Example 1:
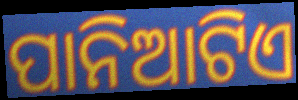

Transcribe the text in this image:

ପାନିଆଟିଏ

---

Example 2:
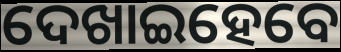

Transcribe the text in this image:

ଦେଖାଇହେବେ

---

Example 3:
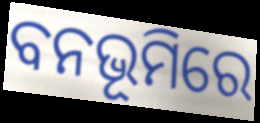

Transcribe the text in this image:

ବନଭୂମିରେ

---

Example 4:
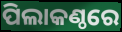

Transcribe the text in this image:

ପିଲାକଣ୍ଠରେ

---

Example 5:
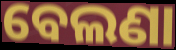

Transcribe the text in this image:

ବେଲଣା